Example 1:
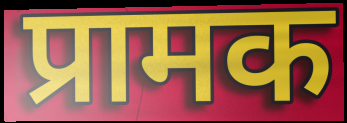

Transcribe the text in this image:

प्रामक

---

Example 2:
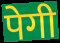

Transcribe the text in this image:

पेगी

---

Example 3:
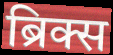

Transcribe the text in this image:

ब्रिक्‍स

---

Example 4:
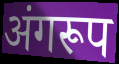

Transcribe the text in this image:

अंगरूप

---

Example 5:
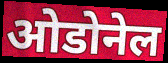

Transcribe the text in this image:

ओडोनेल